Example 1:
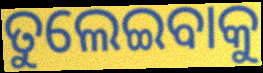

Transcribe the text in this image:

ତୁଲେଇବାକୁ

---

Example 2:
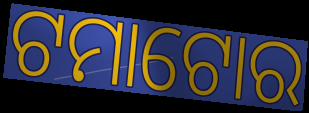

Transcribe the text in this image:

ଟମାଟୋର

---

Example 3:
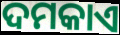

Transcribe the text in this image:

ଦମକାଏ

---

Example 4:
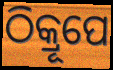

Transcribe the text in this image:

ଠିକ୍ରୂପେ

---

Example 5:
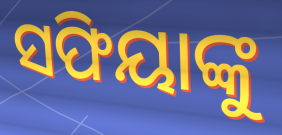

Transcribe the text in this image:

ସଫିୟାଙ୍କୁ